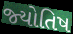
જ્‍યોતિષ